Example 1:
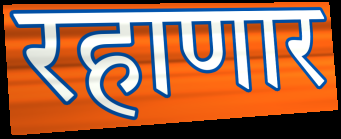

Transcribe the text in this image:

रहाणार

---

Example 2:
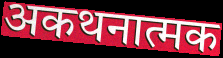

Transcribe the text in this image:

अकथनात्मक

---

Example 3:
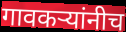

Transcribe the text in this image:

गावकऱ्यांनीच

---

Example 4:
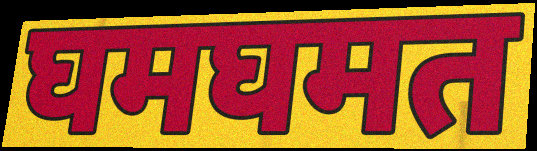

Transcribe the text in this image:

घमघमत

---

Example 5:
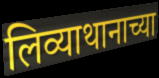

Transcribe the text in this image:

लिव्याथानाच्या